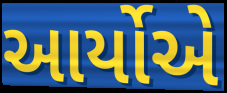
આર્યોએ